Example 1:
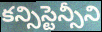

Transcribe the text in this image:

కన్సిస్టెన్సీని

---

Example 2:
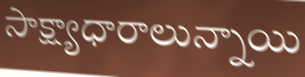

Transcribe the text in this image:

సాక్ష్యాధారాలున్నాయి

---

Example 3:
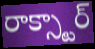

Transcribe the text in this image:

రాక్స్టార్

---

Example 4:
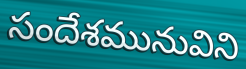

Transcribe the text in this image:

సందేశమునువిని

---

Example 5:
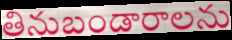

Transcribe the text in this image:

తినుబండారాలను